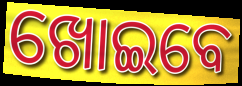
ଖୋଇବେ